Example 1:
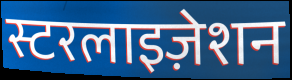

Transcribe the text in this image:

स्टरलाइज़ेशन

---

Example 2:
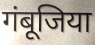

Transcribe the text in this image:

गंबूजिया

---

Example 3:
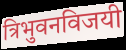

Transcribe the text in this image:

त्रिभुवनविजयी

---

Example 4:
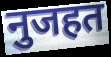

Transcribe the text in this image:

नुजहत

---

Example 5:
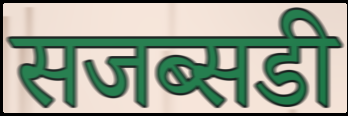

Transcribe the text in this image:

सजब्सडी